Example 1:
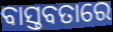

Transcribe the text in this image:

ବାସ୍ତବତାରେ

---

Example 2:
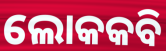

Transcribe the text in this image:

ଲୋକକବି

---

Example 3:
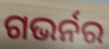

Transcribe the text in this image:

ଗଭର୍ନର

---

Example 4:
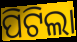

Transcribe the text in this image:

ପିଟିଲା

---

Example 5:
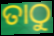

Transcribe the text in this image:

ତାଠୁ